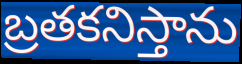
బ్రతకనిస్తాను